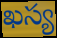
ఖస్య